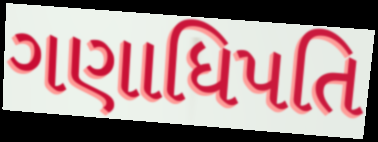
ગણાધિપતિ